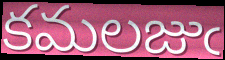
కమలజుఁ